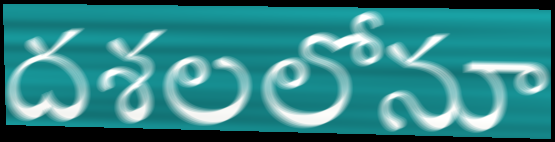
దశలలోనూ